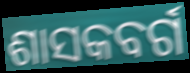
ଶାସକବର୍ଗ